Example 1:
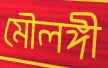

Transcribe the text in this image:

মৌলঙ্গী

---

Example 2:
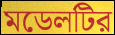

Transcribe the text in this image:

মডেলটির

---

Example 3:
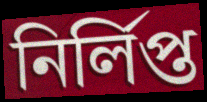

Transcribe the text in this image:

নির্লিপ্ত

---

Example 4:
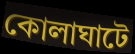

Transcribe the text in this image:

কোলাঘাটে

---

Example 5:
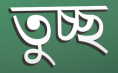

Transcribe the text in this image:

তুচ্ছ